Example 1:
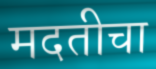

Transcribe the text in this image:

मदतीचा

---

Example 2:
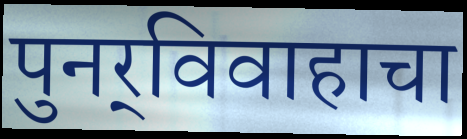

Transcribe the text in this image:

पुनर्विवाहाचा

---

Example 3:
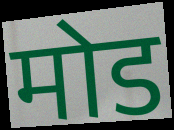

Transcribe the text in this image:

मोड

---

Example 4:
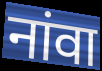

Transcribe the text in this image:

नांवा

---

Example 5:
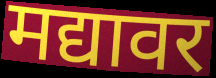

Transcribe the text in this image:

मद्यावर